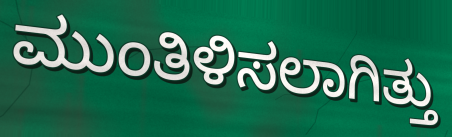
ಮುಂತಿಳಿಸಲಾಗಿತ್ತು